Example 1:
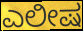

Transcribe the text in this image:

ಎಲೀಷ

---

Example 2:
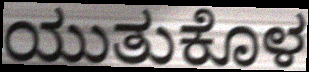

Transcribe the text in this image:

ಯುತುಕೊಳ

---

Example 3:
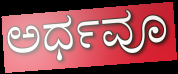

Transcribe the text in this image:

ಅರ್ಧವೂ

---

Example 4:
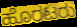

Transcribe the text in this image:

ಹೊರಟರು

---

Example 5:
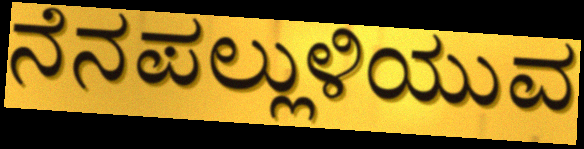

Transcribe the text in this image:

ನೆನಪಲ್ಲುಳಿಯುವ